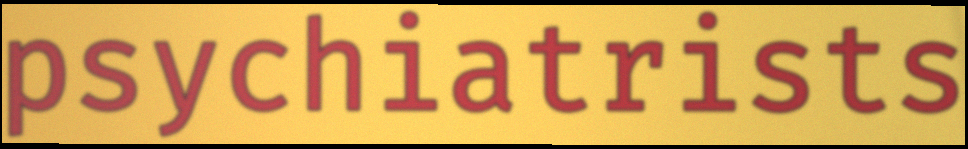
psychiatrists